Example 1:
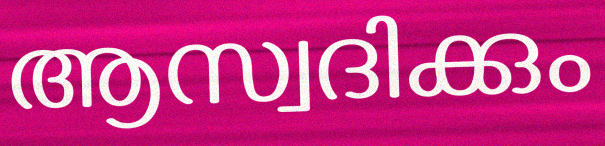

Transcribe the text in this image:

ആസ്വദിക്കും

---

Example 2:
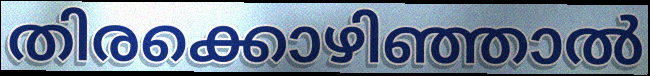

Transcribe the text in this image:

തിരക്കൊഴിഞ്ഞാൽ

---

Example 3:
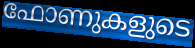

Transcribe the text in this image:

ഫോണുകളുടെ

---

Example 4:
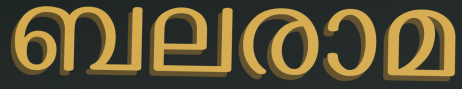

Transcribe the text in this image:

ബലരാമ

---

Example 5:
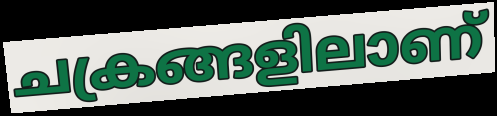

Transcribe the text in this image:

ചക്രങ്ങളിലാണ്